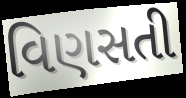
વિણસતી